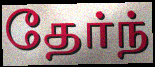
தேர்ந்